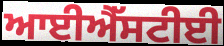
ਆਈਐੱਸਟੀਈ